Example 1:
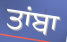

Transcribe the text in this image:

ਤਾਂਬਾ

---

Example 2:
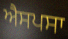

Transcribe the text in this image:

ਐਸਪਸਾ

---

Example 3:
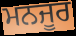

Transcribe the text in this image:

ਮਨਜੂਰ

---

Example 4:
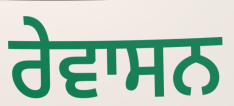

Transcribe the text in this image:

ਰੇਵਾਸਨ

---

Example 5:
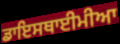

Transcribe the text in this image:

ਡਾਇਸਥਾਈਮੀਆ